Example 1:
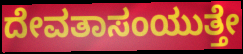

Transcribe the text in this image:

ದೇವತಾಸಂಯುತ್ತೇ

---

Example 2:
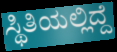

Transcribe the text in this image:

ಸ್ಥಿತಿಯಲ್ಲಿದ್ದೆ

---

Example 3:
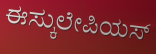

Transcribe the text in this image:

ಈಸ್ಕುಲೇಪಿಯಸ್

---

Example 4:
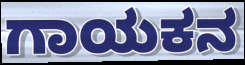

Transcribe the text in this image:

ಗಾಯಕನ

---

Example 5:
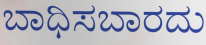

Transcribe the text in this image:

ಬಾಧಿಸಬಾರದು